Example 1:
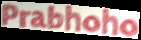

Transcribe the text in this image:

Prabhoho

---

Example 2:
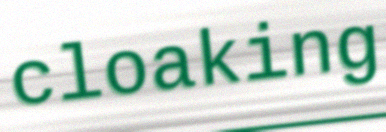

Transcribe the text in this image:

cloaking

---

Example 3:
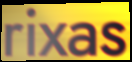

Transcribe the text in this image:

rixas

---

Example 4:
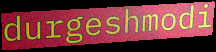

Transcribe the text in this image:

durgeshmodi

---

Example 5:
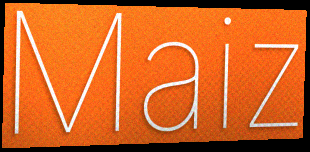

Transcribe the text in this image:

Maiz